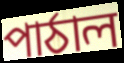
পাঠাল